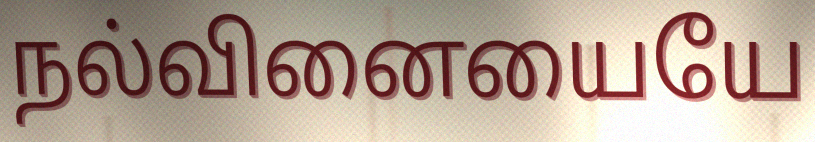
நல்வினையையே